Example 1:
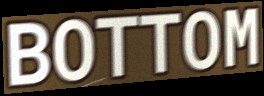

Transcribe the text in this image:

BOTTOM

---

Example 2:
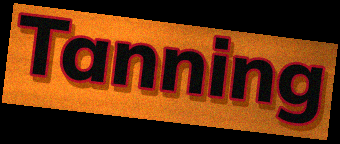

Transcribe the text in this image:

Tanning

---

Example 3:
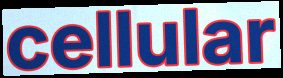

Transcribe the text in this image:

cellular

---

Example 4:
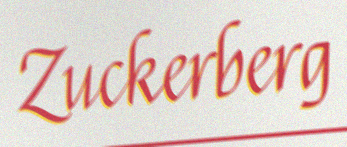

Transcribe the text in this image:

Zuckerberg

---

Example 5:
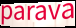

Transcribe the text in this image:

parava